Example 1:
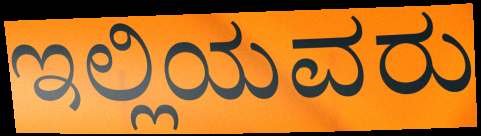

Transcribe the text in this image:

ಇಲ್ಲಿಯವರು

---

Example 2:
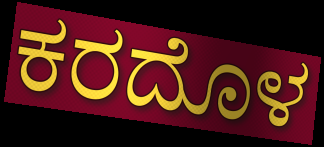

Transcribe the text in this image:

ಕರದೊಳ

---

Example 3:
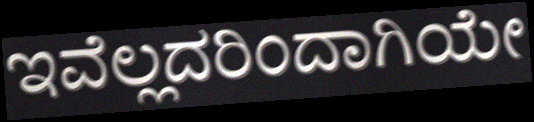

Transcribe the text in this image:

ಇವೆಲ್ಲದರಿಂದಾಗಿಯೇ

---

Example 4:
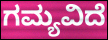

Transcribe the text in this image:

ಗಮ್ಯವಿದೆ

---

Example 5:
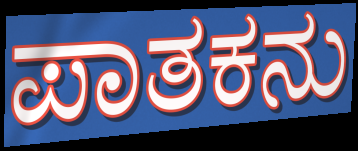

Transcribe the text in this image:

ಪಾತಕನು